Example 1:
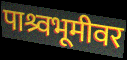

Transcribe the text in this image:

पाश्र्वभूमीवर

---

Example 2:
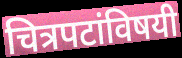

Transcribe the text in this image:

चित्रपटांविषयी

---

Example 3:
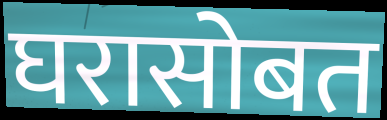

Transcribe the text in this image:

घरासोबत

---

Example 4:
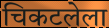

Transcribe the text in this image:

चिकटलेला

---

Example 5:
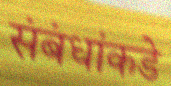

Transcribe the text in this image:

संबंधांकडे